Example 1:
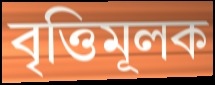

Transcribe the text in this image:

বৃত্তিমূলক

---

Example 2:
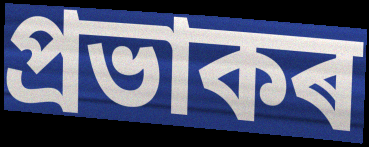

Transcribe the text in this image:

প্ৰভাকৰ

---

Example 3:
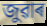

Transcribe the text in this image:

জুৱাৰ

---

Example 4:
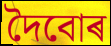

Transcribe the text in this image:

দৈবোৰ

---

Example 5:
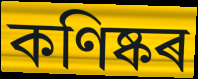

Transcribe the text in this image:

কণিষ্কৰ